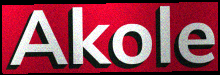
Akole